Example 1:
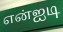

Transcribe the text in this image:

என்ஐடி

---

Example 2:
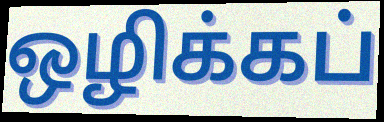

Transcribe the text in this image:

ஒழிக்கப்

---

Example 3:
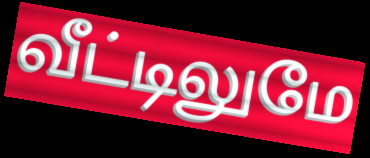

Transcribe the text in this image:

வீட்டிலுமே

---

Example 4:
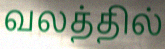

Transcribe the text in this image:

வலத்தில்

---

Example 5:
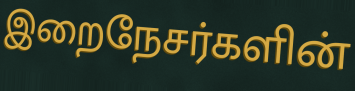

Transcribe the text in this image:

இறைநேசர்களின்